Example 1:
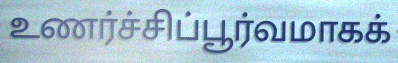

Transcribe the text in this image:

உணர்ச்சிப்பூர்வமாகக்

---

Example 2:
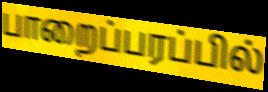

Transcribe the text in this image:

பாறைப்பரப்பில்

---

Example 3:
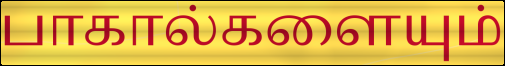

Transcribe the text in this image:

பாகால்களையும்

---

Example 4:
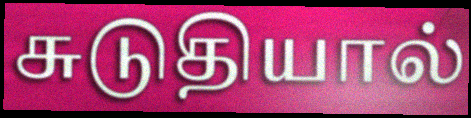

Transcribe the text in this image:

சுடுதியால்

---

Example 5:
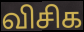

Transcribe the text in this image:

விசிக